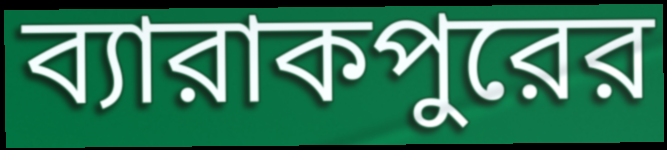
ব্যারাকপুরের